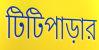
টিটিপাড়ার